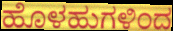
ಹೊಳಹುಗಳಿಂದ